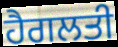
ਹੈਗਲਤੀ